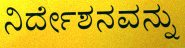
ನಿರ್ದೇಶನವನ್ನು